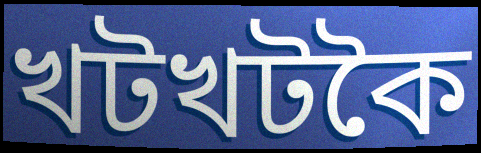
খটখটকৈ